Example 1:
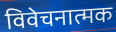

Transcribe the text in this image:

विवेचनात्‍मक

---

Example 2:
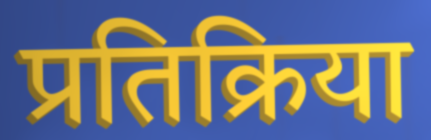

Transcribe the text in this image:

प्रतिक्रिया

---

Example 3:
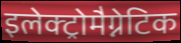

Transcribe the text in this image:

इलेक्ट्रोमैग्नेटिक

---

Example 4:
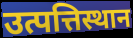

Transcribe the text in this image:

उत्पत्तिस्थान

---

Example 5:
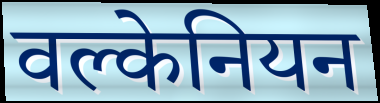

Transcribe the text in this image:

वल्केनियन